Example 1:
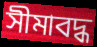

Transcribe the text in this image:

সীমাবদ্ধ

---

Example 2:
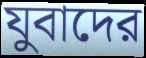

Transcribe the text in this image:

যুবাদের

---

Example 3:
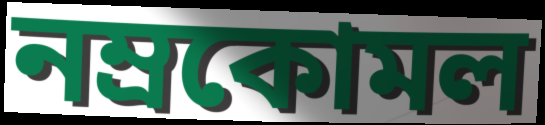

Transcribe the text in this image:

নম্রকোমল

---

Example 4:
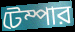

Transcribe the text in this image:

টেম্পার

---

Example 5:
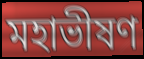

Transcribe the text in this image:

মহাভীষণ